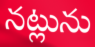
నట్లును